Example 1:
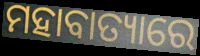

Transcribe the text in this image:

ମହାବାତ୍ୟାରେ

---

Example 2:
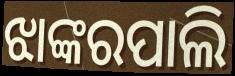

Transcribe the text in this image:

ଝାଙ୍କରପାଲି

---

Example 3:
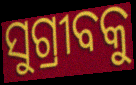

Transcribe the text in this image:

ସୁଗ୍ରୀବକୁ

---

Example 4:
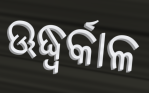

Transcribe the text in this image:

ଊଦ୍ଧ୍ୱର୍କାଳ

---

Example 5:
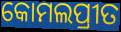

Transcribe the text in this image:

କୋମଲପ୍ରୀତ